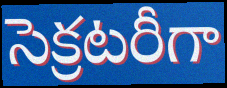
సెక్రటరీగా